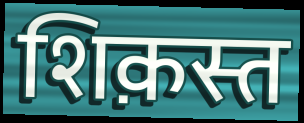
शिक़स्त